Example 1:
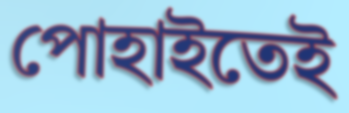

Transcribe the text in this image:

পোহাইতেই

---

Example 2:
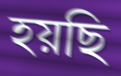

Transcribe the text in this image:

হয়ছি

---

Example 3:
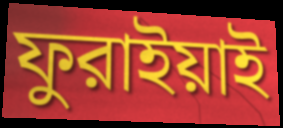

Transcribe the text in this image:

ফুরাইয়াই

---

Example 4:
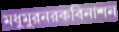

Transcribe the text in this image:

মধুমুরনরকবিনাশন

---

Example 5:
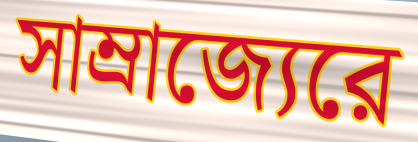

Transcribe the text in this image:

সাম্রাজ্যেরে